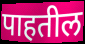
पाहतील